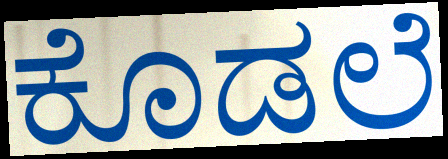
ಕೊಡಲೆ